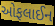
ઓફલાઈન